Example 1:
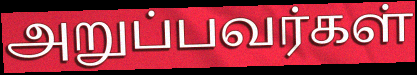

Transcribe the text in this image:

அறுப்பவர்கள்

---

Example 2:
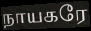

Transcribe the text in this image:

நாயகரே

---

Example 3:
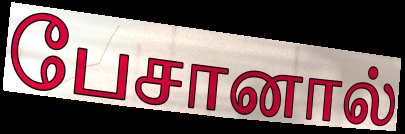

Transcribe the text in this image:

பேசானால்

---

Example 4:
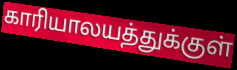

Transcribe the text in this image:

காரியாலயத்துக்குள்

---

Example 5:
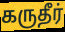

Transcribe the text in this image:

கருதீர்